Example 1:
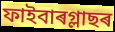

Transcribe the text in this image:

ফাইবাৰগ্লাছৰ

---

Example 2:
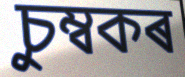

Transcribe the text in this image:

চুম্বকৰ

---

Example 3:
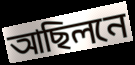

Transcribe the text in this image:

আছিলনে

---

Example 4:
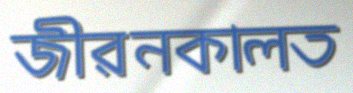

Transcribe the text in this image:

জীৱনকালত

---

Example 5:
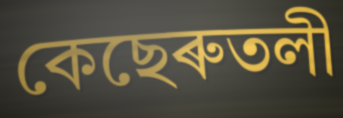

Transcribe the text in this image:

কেছেৰুতলী